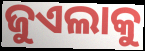
ଜୁଏଲାକୁ